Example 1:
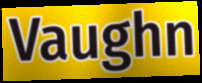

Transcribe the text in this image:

Vaughn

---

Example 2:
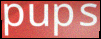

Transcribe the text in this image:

pups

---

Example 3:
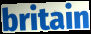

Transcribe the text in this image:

britain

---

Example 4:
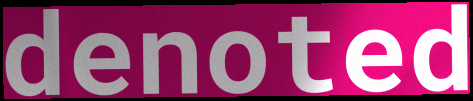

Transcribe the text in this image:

denoted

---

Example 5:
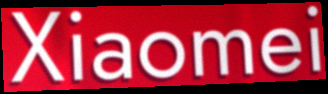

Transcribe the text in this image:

Xiaomei